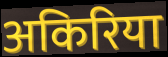
अकिरिया